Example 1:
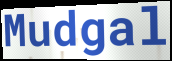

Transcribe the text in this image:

Mudgal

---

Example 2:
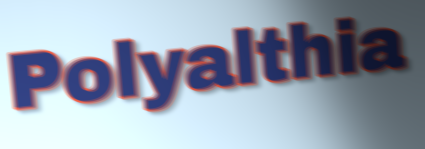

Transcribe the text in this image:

Polyalthia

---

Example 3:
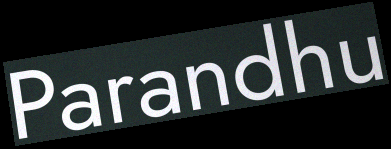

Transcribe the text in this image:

Parandhu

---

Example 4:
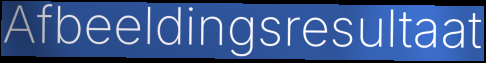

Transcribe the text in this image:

Afbeeldingsresultaat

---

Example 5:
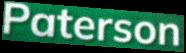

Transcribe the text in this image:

Paterson